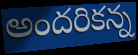
అందరికన్న